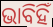
ଭାବିହିଁ